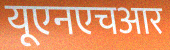
यूएनएचआर